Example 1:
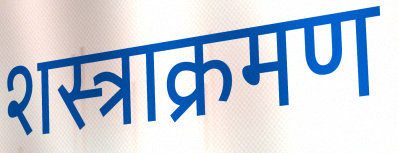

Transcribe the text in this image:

शस्त्राक्रमण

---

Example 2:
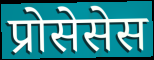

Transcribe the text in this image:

प्रोसेसेस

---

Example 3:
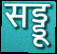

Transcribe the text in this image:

सड्डू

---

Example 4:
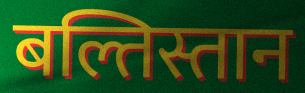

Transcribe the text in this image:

बल्तिस्तान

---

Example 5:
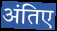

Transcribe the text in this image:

अंतिए